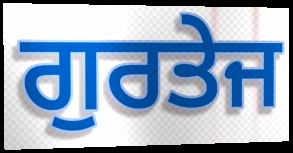
ਗੁਰਤੇਜ